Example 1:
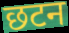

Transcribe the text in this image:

छटन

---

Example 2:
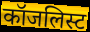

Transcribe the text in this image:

कॉजलिस्ट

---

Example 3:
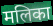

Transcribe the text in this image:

मलिका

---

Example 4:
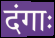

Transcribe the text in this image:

दंगाः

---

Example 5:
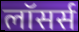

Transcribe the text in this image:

लॉसर्स